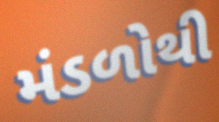
મંડળોથી